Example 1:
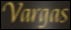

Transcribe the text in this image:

Vargas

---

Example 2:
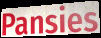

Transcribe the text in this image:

Pansies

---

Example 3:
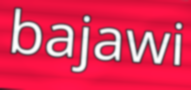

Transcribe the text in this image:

bajawi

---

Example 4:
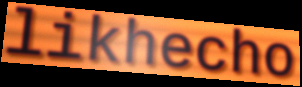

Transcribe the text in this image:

likhecho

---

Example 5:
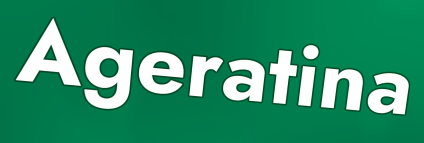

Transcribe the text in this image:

Ageratina